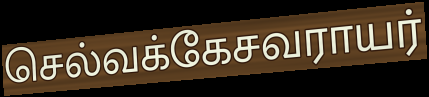
செல்வக்கேசவராயர்